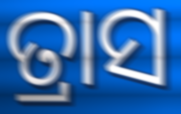
ତ୍ରାସ